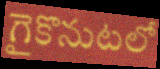
గైకొనుటలో